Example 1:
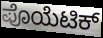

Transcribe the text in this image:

ಪೊಯೆಟಿಕ್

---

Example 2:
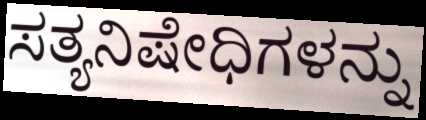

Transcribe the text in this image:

ಸತ್ಯನಿಷೇಧಿಗಳನ್ನು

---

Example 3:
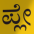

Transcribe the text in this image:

ಪ್ಲೇ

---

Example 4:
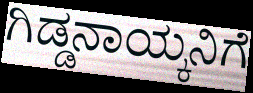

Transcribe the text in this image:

ಗಿಡ್ಡನಾಯ್ಕನಿಗೆ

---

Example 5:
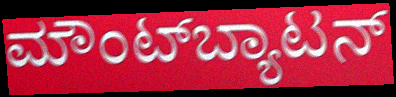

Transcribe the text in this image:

ಮೌಂಟ್‌ಬ್ಯಾಟನ್